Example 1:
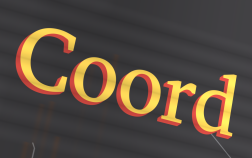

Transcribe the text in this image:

Coord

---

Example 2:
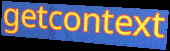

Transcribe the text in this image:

getcontext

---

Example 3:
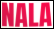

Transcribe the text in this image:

NALA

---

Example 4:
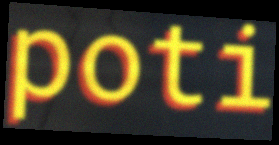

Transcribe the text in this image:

poti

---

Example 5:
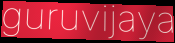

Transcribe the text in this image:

guruvijaya